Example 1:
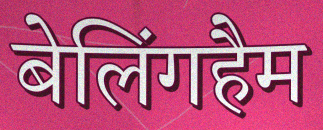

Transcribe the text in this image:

बेलिंगहैम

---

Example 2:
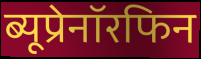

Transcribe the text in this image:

ब्यूप्रेनॉरफिन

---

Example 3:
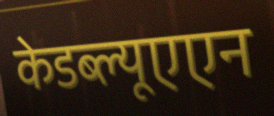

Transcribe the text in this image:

केडब्ल्यूएएन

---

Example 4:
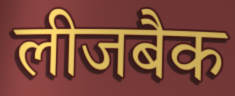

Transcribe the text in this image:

लीजबैक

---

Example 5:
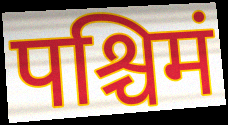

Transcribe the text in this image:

पश्चिमं